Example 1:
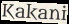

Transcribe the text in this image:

Kakani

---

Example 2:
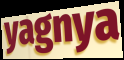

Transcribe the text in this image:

yagnya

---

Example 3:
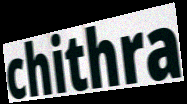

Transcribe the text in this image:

chithra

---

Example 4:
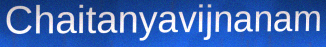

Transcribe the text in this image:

Chaitanyavijnanam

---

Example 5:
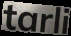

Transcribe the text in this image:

tarli